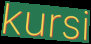
kursi